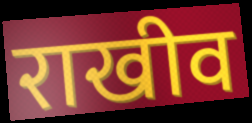
राखीव